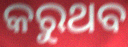
କରୁଥବ